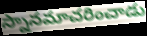
స్నానమాచరించాడు